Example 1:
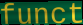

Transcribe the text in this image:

funct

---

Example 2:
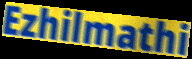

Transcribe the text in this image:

Ezhilmathi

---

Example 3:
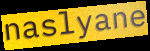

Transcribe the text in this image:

naslyane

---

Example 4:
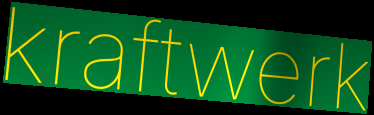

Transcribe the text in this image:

kraftwerk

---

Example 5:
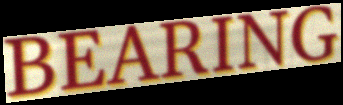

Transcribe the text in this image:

BEARING